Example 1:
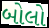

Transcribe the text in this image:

બોલો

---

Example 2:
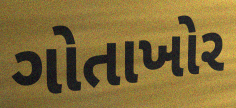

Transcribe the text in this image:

ગોતાખોર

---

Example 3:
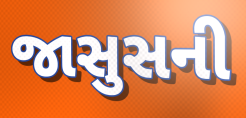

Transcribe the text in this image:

જાસુસની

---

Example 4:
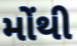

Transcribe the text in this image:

મોંથી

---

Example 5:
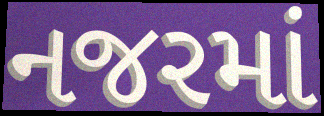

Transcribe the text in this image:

નજરમાં